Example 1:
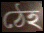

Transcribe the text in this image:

ঠেহ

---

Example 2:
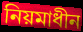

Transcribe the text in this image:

নিয়মাধীন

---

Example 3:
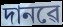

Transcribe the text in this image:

দানৱে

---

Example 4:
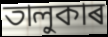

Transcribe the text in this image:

তালুকাৰ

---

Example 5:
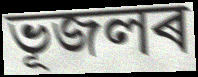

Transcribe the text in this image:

ভূজলৰ